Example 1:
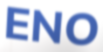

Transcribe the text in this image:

ENO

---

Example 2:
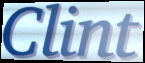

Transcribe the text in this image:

Clint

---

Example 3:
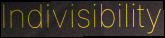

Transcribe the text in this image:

Indivisibility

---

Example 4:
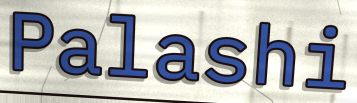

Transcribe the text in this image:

Palashi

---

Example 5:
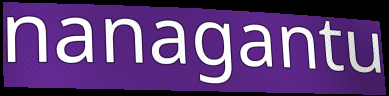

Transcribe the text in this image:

nanagantu